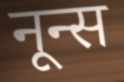
नून्स